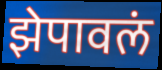
झेपावलं